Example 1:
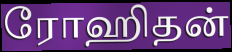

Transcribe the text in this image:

ரோஹிதன்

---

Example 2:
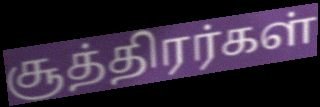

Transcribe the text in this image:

சூத்திரர்கள்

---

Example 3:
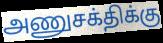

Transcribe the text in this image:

அணுசக்திக்கு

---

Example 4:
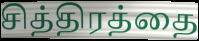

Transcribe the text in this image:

சித்திரத்தை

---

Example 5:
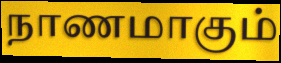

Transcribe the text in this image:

நாணமாகும்